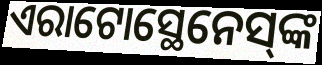
ଏରାଟୋସ୍ଥେନେସ୍‌ଙ୍କ